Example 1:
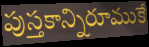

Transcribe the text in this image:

పుస్తకాన్నిరూముకే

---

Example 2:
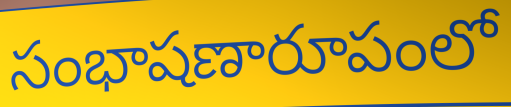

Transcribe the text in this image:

సంభాషణారూపంలో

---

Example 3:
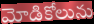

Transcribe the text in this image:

మోడికోలును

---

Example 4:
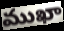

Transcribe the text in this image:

ముఖా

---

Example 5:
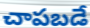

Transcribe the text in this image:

చాపబడే